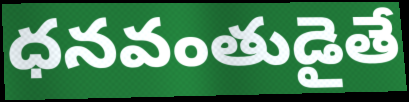
ధనవంతుడైతే